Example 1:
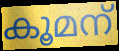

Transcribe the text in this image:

കൂമന്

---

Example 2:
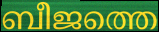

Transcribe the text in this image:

ബീജത്തെ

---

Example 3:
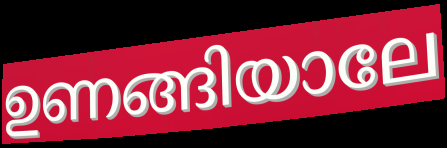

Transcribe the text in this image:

ഉണങ്ങിയാലേ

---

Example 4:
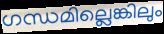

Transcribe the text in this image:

ഗന്ധമില്ലെങ്കിലും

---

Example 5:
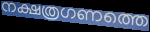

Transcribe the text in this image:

നക്ഷത്രഗണത്തെ